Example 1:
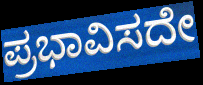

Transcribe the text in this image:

ಪ್ರಭಾವಿಸದೇ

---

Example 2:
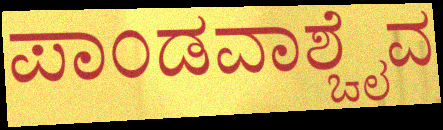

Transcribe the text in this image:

ಪಾಂಡವಾಶ್ಚೈವ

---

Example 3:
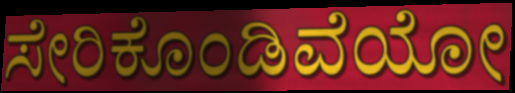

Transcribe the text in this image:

ಸೇರಿಕೊಂಡಿವೆಯೋ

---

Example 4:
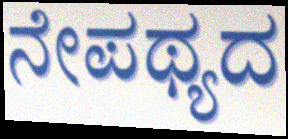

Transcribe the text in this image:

ನೇಪಥ್ಯದ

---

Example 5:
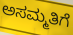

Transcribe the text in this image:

ಅಸಮ್ಮತಿಗೆ